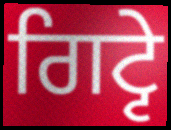
ਗਿਟ੍ਟੇ